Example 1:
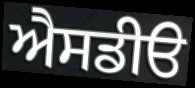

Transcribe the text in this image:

ਐਸਡੀੳ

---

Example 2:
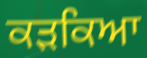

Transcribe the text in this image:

ਕੜਕਿਆ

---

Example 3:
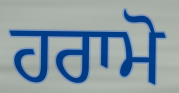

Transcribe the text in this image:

ਹਰਾਮੋ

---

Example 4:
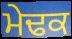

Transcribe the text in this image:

ਮੇਢਕ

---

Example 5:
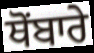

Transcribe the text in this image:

ਥੋਂਬਾਰੇ